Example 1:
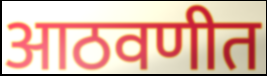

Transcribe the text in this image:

आठवणीत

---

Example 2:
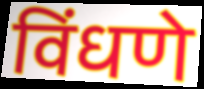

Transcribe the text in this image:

विंधणे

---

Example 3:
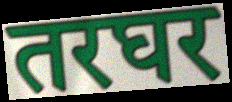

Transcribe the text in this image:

तरघर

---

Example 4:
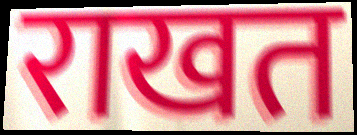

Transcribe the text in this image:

राखत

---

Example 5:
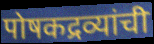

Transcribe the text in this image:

पोषकद्रव्यांची